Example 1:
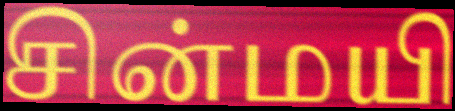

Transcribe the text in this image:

சின்மயி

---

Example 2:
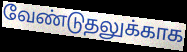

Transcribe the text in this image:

வேண்டுதலுக்காக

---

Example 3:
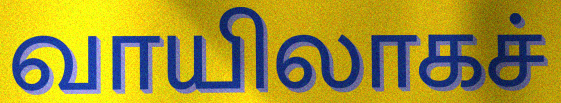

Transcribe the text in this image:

வாயிலாகச்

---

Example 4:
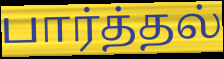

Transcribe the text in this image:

பார்த்தல்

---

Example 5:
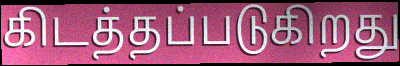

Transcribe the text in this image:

கிடத்தப்படுகிறது